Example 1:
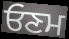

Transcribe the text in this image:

ਓਣਮ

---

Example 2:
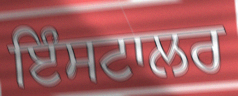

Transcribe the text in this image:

ਇੰਸਟਾਲਰ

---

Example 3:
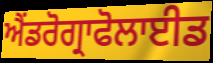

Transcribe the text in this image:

ਐਂਡਰੋਗ੍ਰਾਫੋਲਾਈਡ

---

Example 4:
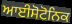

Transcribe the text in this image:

ਆਈਸੋਟੋਨਿਕ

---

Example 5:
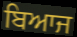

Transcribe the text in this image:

ਬਿਆਜ